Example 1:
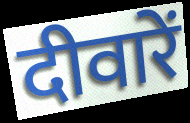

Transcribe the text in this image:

दीवारें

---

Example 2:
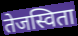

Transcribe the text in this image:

तेजस्विता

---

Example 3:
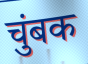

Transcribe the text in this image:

चुंबक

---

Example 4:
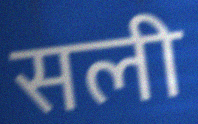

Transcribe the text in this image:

सली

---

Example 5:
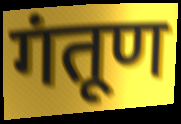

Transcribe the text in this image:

गंतूण